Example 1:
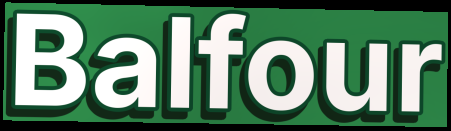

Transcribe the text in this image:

Balfour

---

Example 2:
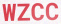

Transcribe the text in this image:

WZCC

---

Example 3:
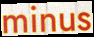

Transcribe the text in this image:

minus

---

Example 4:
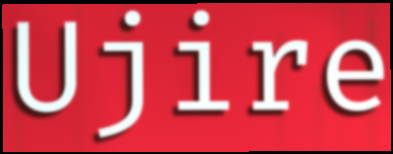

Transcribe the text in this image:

Ujire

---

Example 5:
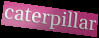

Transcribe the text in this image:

caterpillar